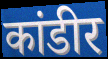
कांडीर